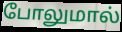
போலுமால்